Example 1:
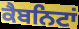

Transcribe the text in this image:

ਕੈਬਨਿਟਾਂ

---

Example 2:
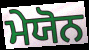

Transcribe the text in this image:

ਮੇਯੋਨ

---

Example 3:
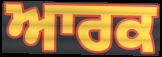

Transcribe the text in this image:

ਆਰਕ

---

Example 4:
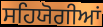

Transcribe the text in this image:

ਸਹਿਯੋਗੀਆਂ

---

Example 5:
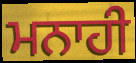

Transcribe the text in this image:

ਮਨਾਹੀ